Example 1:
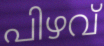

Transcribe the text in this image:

പിഴവ്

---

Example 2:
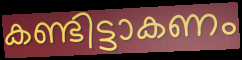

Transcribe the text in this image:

കണ്ടിട്ടാകണം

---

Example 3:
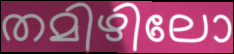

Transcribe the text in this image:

തമിഴിലോ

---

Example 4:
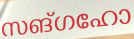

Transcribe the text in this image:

സങ്ഗഹോ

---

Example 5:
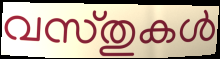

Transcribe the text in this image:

വസ്തുകൾ